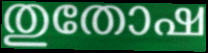
തുതോഷ